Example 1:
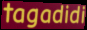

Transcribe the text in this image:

tagadidi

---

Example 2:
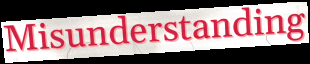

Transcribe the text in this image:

Misunderstanding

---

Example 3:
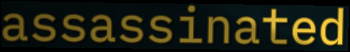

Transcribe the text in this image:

assassinated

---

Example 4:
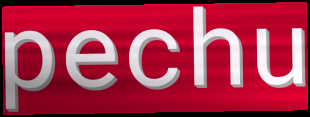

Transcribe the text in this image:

pechu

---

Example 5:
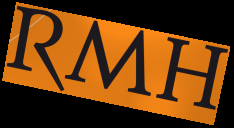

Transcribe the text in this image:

RMH